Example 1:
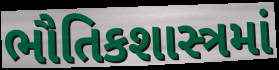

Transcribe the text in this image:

ભૌતિકશાસ્ત્રમાં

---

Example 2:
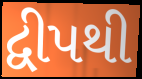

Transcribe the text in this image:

દ્વીપથી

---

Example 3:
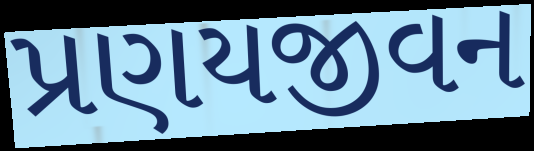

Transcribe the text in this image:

પ્રણયજીવન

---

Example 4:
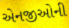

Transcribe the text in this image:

એનજીઓની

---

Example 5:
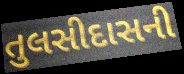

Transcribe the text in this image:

તુલસીદાસની